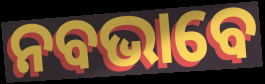
ନବଭାବେ